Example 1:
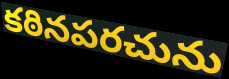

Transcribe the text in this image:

కఠినపరచును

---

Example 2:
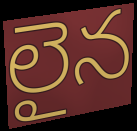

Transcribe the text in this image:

లైన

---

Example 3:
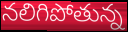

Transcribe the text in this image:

నలిగిపోతున్న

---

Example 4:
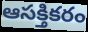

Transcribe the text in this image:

ఆసక్తికరం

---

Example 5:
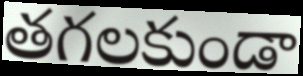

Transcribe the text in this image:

తగలకుండా